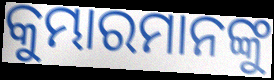
କୁମ୍ଭାରମାନଙ୍କୁ